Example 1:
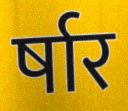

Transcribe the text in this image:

र्षार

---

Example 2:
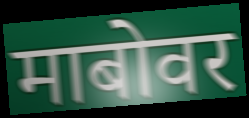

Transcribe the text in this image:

माबोवर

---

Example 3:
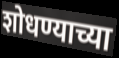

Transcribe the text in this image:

शोधण्याच्या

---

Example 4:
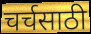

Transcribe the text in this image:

चर्चसाठी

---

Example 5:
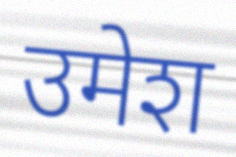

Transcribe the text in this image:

उमेश